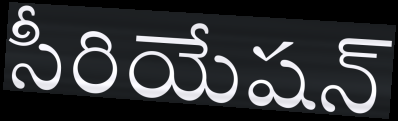
సీరియేషన్